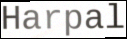
Harpal